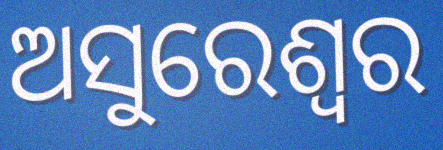
ଅସୁରେଶ୍ୱର